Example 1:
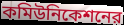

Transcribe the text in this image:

কমিউনিকেশনের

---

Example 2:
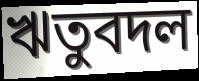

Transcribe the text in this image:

ঋতুবদল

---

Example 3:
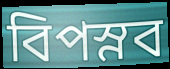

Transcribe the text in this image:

বিপস্নব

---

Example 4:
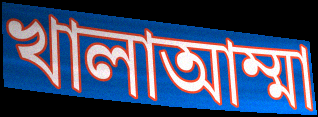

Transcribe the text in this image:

খালাআম্মা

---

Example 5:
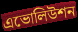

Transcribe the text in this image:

এভোলিউশন